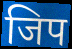
जिप